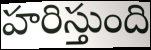
హరిస్తుంది